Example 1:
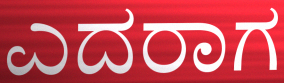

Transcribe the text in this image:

ಎದರಾಗ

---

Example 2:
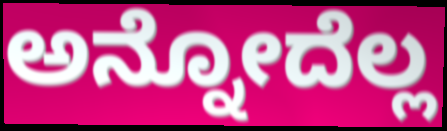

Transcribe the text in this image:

ಅನ್ನೋದೆಲ್ಲ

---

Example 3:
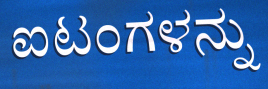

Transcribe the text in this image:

ಐಟಂಗಳನ್ನು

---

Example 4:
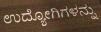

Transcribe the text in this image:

ಉದ್ಯೋಗಿಗಳನ್ನು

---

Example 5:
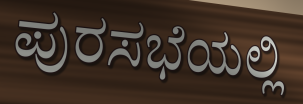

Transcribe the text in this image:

ಪುರಸಭೆಯಲ್ಲಿ